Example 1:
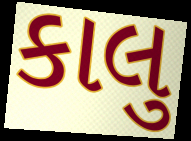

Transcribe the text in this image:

કાલુ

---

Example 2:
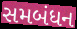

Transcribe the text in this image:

સમબંધન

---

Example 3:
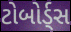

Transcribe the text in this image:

ટોબોર્ડ્સ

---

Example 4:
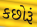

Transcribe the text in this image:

કછોરૂં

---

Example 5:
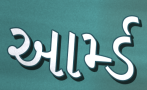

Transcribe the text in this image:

આર્મ્ડ